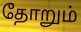
தோறும்